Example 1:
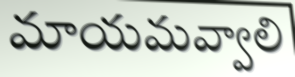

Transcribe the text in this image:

మాయమవ్వాలి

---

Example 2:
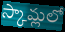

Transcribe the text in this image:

స్కామ్లలో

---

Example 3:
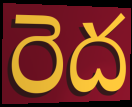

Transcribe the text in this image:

రెద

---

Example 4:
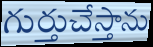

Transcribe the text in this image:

గుర్తుచేస్తాను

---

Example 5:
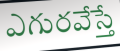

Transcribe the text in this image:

ఎగురవేస్తే